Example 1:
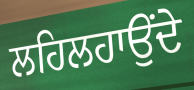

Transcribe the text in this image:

ਲਹਿਲਹਾਉਂਦੇ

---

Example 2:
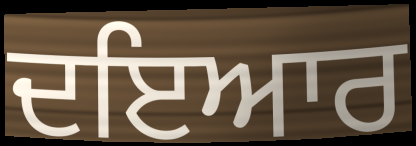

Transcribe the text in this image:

ਦਇਆਰ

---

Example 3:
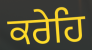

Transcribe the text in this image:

ਕਰੇਹਿ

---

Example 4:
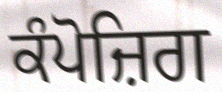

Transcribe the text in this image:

ਕੰਪੋਜ਼ਿਗ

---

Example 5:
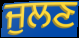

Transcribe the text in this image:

ਜੁਲਣ